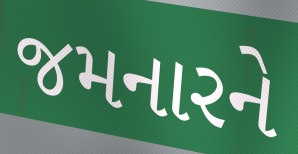
જમનારને